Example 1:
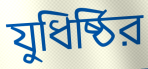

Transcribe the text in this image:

যুধিষ্ঠির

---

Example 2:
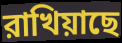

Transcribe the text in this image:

রাখিয়াছে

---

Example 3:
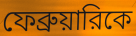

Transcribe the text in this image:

ফেব্রুয়ারিকে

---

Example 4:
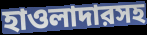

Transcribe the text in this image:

হাওলাদারসহ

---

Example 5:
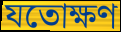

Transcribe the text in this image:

যতোক্ষণ